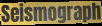
Seismograph